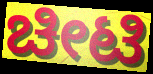
ಚೀಟಿ